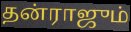
தன்ராஜும்